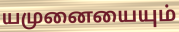
யமுனையையும்